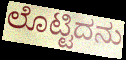
ಲೊಟ್ಟಿದನು